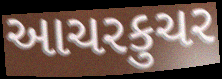
આચરકુચર